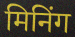
मिनिंग